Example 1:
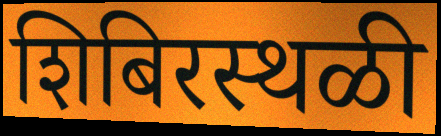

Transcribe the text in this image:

शिबिरस्थळी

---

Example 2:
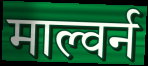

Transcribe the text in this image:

माल्वर्न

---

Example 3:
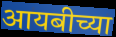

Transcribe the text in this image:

आयबीच्या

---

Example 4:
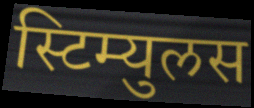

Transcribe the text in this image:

स्टिम्युलस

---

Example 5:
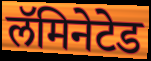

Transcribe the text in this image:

लॅमिनेटेड